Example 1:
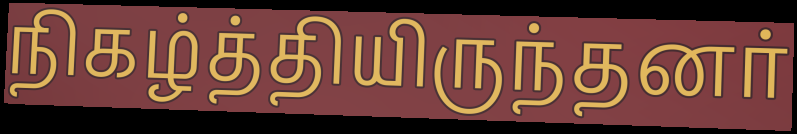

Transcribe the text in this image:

நிகழ்த்தியிருந்தனர்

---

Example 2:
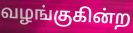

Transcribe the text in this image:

வழங்குகின்ற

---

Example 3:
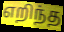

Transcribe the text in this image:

எறிந்த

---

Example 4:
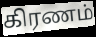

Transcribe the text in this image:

கிரணம்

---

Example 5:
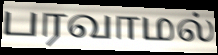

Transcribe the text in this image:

பரவாமல்